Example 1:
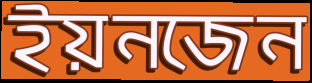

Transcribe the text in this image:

ইয়নজেন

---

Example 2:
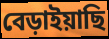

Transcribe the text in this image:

বেড়াইয়াছি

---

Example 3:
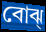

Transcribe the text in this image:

বোঝ্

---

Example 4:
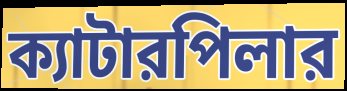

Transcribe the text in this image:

ক্যাটারপিলার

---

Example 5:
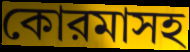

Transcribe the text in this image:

কোরমাসহ